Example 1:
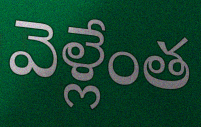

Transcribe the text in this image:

వెళ్లేంత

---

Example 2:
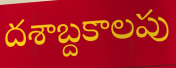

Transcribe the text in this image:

దశాబ్దకాలపు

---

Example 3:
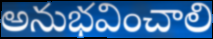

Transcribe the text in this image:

అనుభవించాలి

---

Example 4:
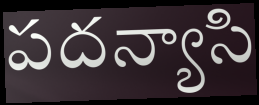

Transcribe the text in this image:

పదన్యాసి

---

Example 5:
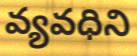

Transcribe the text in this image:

వ్యవధిని